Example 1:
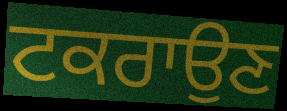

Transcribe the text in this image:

ਟਕਰਾਉਣ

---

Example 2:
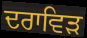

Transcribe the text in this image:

ਦਰਾਵਿੜ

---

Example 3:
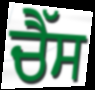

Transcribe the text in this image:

ਚੈੱਸ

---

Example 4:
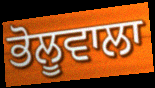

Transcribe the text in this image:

ਭੋਲੂਵਾਲਾ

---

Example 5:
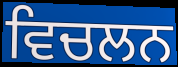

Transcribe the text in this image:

ਵਿਚਲਨ